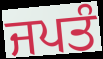
ਜਪਤੰ